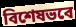
বিশেষভবে